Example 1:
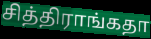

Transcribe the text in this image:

சித்திராங்கதா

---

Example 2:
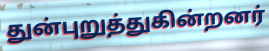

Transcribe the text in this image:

துன்புறுத்துகின்றனர்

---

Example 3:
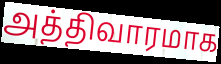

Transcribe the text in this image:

அத்திவாரமாக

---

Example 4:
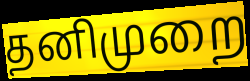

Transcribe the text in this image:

தனிமுறை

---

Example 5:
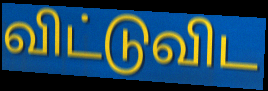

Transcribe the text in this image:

விட்டுவிட